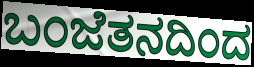
ಬಂಜೆತನದಿಂದ